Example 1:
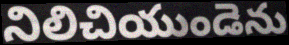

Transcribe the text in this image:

నిలిచియుండెను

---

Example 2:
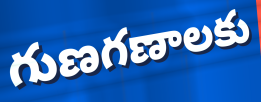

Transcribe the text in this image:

గుణగణాలకు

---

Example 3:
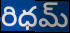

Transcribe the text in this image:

రిధమ్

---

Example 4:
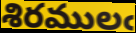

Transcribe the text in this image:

శిరములఁ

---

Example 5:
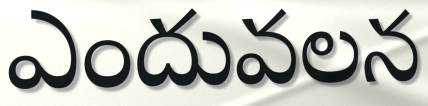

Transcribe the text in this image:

ఎందువలన